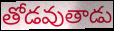
తోడవుతాడు